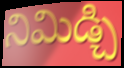
నిమిడ్చి